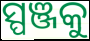
ସ୍ପଞ୍ଜକୁ